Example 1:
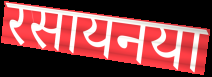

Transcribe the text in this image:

रसायनया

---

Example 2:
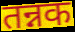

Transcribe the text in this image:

तन्नक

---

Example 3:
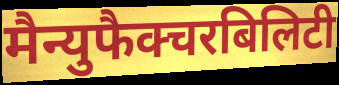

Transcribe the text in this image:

मैन्युफैक्चरबिलिटी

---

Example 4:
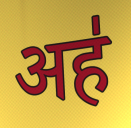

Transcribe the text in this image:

अह॑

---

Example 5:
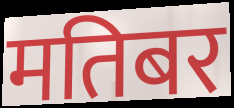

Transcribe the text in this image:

मतिबर